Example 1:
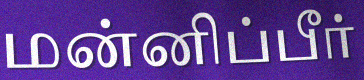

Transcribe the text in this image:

மன்னிப்பீர்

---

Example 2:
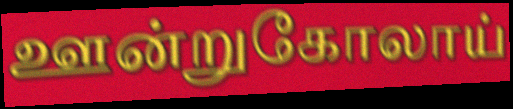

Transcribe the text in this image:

ஊன்றுகோலாய்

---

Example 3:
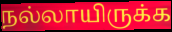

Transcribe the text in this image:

நல்லாயிருக்க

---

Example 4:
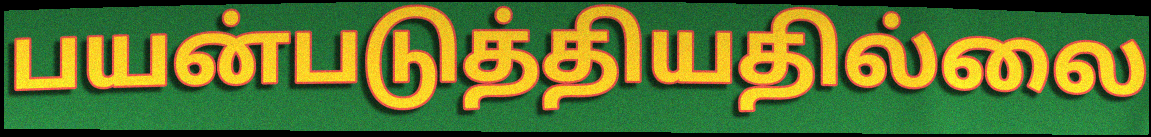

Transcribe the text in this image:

பயன்படுத்தியதில்லை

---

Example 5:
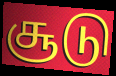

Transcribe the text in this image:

சூடு